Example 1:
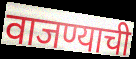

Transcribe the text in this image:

वाजण्याची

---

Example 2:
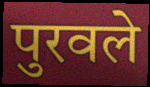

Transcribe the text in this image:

पुरवले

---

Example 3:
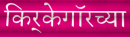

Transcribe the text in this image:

किर्केगॉरच्या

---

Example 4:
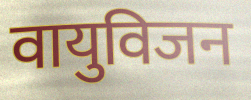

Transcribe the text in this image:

वायुविजन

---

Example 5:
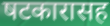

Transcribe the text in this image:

षटकारासह